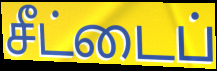
சீட்டைப்